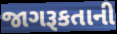
જાગરૂકતાની